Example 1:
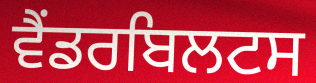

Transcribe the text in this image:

ਵੈਂਡਰਬਿਲਟਸ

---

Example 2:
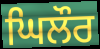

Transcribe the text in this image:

ਘਿਲੌਰ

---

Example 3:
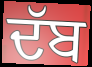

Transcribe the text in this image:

ਦੱਬ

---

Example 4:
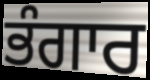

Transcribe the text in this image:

ਭੰਗਾਰ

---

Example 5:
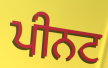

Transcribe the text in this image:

ਪੀਨਟ